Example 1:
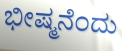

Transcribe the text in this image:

ಭೀಷ್ಮನೆಂದು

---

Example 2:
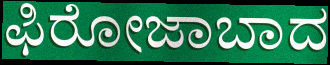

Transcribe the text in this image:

ಫಿರೋಜಾಬಾದ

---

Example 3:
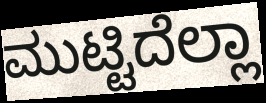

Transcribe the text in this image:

ಮುಟ್ಟಿದೆಲ್ಲಾ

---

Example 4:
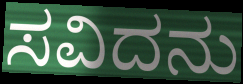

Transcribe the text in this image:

ಸವಿದನು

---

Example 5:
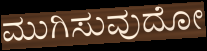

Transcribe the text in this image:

ಮುಗಿಸುವುದೋ